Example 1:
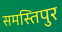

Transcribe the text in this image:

समस्तिपुर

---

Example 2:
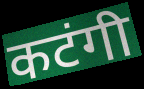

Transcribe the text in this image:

कटंगी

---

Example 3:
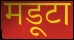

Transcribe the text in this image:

मडूटा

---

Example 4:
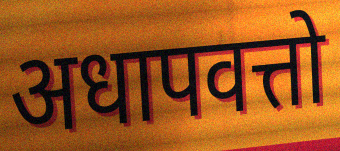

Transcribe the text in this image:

अधापवत्तो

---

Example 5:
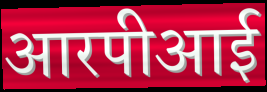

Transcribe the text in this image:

आरपीआई